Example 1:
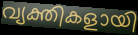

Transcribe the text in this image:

വ്യക്തികളായി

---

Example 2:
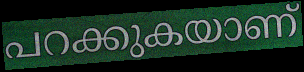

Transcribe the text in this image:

പറക്കുകയാണ്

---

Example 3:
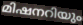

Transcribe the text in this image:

മിഷനറിയും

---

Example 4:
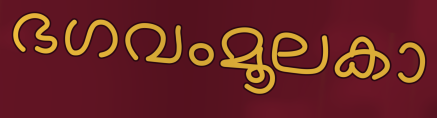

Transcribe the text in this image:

ഭഗവംമൂലകാ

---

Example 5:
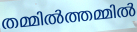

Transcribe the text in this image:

തമ്മിൽത്തമ്മിൽ